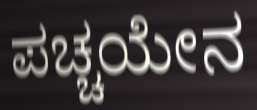
ಪಚ್ಚಯೇನ